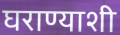
घराण्याशी